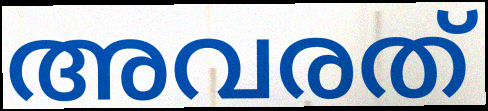
അവരത്